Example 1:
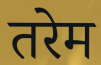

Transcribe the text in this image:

तरेम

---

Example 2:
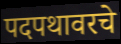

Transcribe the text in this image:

पदपथावरचे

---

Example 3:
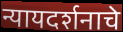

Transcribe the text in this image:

न्यायदर्शनाचे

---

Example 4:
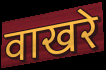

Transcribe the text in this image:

वाखरे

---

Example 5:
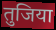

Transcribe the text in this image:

तुजिया